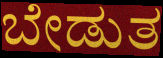
ಬೇಡುತ